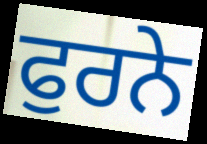
ਫੁਰਨੇ